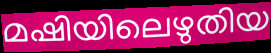
മഷിയിലെഴുതിയ